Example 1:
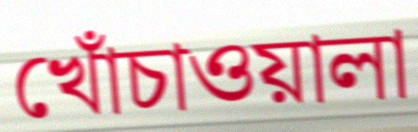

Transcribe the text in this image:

খোঁচাওয়ালা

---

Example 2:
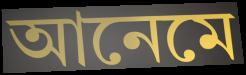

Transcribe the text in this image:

আনেমে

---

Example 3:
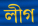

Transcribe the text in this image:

লীগ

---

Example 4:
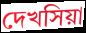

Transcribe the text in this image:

দেখসিয়া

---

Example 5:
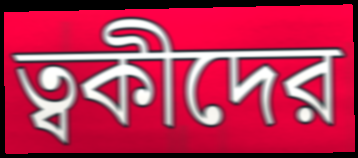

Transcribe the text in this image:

ত্বকীদের